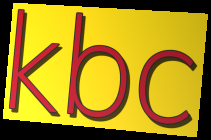
kbc